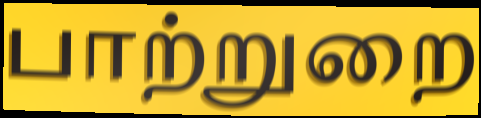
பாற்றுறை